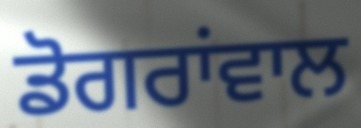
ਡੋਗਰਾਂਵਾਲ